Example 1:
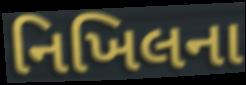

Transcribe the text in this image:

નિખિલના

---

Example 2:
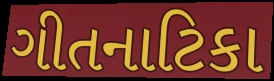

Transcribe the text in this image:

ગીતનાટિકા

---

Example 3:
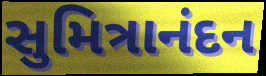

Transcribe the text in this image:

સુમિત્રાનંદન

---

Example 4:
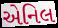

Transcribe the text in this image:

એનિલ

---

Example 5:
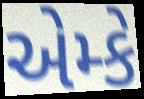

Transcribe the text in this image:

એમ્કે